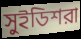
সুইডিশরা